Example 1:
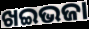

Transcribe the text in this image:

ଖଇଭଜା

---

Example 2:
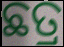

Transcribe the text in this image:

ଛତ୍ର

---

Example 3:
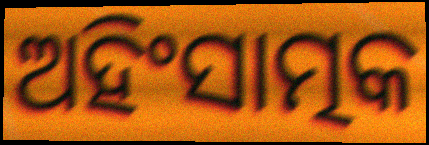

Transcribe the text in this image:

ଅହିଂସାତ୍ମକ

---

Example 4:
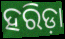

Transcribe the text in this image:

ହରିଡ଼ା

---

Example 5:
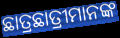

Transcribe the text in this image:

ଛାତ୍ରଛାତ୍ରୀମାନଙ୍କ